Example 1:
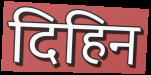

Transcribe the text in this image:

दिहिन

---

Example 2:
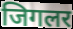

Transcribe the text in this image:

जिगलर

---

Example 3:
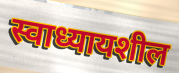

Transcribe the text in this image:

स्वाध्यायशील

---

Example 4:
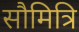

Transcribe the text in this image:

सौमित्रि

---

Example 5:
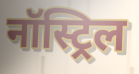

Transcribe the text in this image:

नॉस्ट्रिल